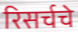
रिसर्चचे